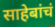
साहेबांचं